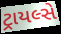
ટ્રાયલ્સે